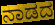
ನಾಡದ